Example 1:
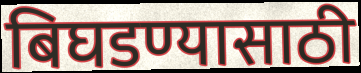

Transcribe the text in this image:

बिघडण्यासाठी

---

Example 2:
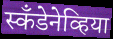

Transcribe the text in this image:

स्कॅंडेनेव्हिया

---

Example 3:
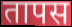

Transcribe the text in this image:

तापस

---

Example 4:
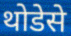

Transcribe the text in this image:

थोडेसे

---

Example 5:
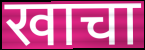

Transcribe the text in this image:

खाचा